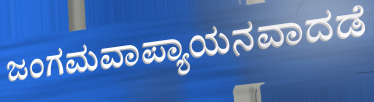
ಜಂಗಮವಾಪ್ಯಾಯನವಾದಡೆ